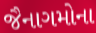
જૈનાગમોના